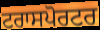
ਟਰਾਸਪੋਰਟਰ